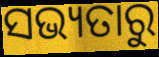
ସଭ୍ୟତାରୁ